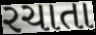
રચાતા